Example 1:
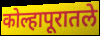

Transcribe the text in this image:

कोल्हापूरातले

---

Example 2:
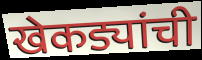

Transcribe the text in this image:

खेकड्यांची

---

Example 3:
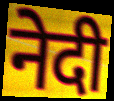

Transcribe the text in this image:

नेदी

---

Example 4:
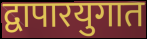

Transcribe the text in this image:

द्वापारयुगात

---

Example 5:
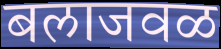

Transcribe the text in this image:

बलाजवळ